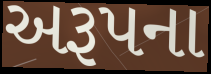
અરૂપના